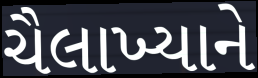
ચૈલાખ્યાને